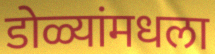
डोळ्यांमधला